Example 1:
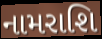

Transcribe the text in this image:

નામરાશિ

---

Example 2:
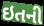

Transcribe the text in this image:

ઇતની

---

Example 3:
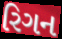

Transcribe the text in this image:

રિગન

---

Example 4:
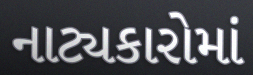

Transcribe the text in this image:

નાટ્યકારોમાં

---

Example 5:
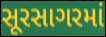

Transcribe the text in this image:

સૂરસાગરમાં